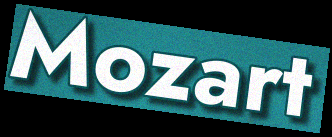
Mozart